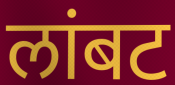
लांबट